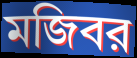
মজিবর